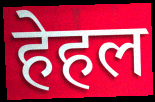
हेहल